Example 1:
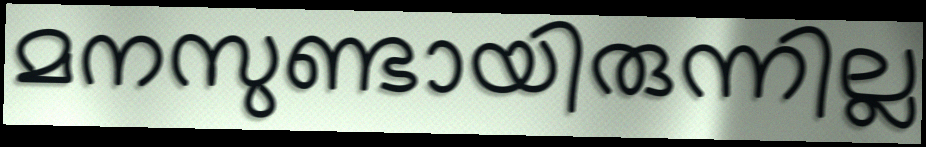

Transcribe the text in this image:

മനസുണ്ടായിരുന്നില്ല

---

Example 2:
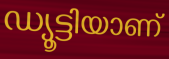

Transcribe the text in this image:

ഡ്യൂട്ടിയാണ്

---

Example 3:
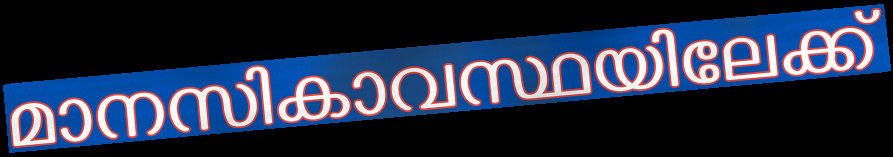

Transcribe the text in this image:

മാനസികാവസ്ഥയിലേക്ക്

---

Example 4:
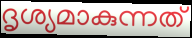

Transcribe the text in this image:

ദൃശ്യമാകുന്നത്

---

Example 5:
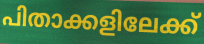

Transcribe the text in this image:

പിതാക്കളിലേക്ക്